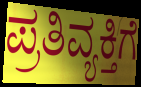
ಪ್ರತಿವ್ಯಕ್ತಿಗೆ